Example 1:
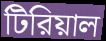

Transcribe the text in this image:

টিরিয়াল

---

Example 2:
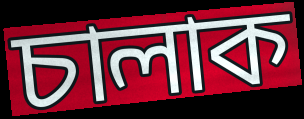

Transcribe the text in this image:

চালাক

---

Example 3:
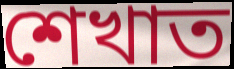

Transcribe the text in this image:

শেখাত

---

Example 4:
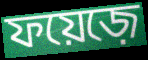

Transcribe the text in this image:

ফয়েজ়ে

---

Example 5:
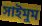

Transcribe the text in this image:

সাইমুম